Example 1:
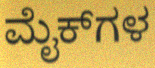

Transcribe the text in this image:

ಮೈಕ್‌ಗಳ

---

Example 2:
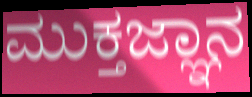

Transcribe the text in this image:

ಮುಕ್ತಜ್ಞಾನ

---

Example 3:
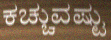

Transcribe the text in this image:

ಕಚ್ಚುವಷ್ಟು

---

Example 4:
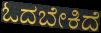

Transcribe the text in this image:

ಓದಬೇಕಿದೆ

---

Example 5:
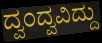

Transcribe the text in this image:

ದ್ವಂದ್ವವಿದ್ದು